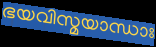
ഭയവിസ്മയാന്ധാഃ